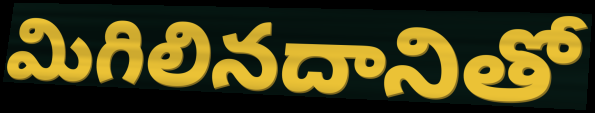
మిగిలినదానితో